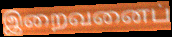
இறைவனைப்